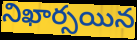
నిఖార్సయిన